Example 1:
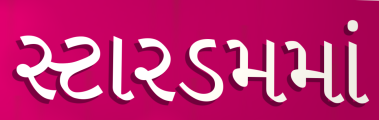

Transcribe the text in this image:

સ્ટારડમમાં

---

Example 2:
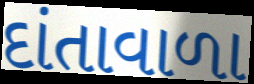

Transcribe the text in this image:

દાંતાવાળા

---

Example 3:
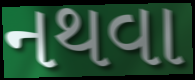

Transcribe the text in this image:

નથવા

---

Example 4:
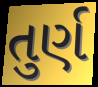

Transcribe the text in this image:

તુર્ણ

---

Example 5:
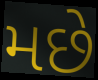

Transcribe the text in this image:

મછે